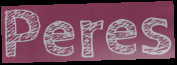
Peres